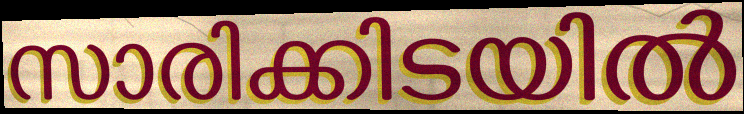
സാരിക്കിടയിൽ